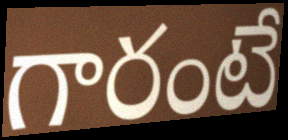
గారంటే